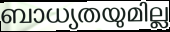
ബാധ്യതയുമില്ല